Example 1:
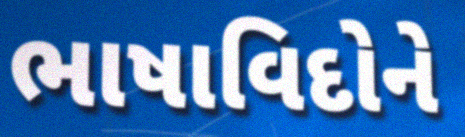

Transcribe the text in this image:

ભાષાવિદોને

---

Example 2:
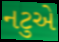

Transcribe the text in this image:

નટુએ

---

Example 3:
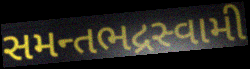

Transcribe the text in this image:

સમન્તભદ્રસ્વામી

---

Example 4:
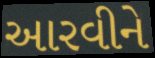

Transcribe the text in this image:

આરવીને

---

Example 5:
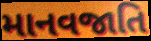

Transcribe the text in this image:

માનવજાતિ